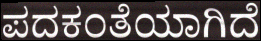
ಪದಕಂತೆಯಾಗಿದೆ